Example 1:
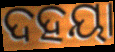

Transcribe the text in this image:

ଦହୟା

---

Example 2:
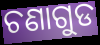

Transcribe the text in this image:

ଚଣାଗୁଡ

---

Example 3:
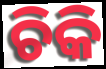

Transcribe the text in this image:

ଚିକି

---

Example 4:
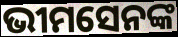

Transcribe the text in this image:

ଭୀମସେନଙ୍କ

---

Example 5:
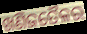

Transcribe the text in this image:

ଖଣିଜତୈଳର